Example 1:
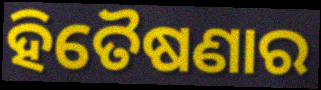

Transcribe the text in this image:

ହିତୈଷଣାର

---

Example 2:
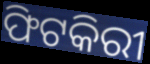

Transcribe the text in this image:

ଫିଟକିରୀ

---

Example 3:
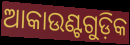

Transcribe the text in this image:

ଆକାଉଣ୍ଟଗୁଡ଼ିକ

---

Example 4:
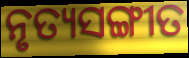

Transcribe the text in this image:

ନୃତ୍ୟସଙ୍ଗୀତ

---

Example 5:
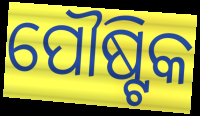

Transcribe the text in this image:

ପୌଷ୍ଟିକ